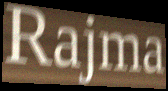
Rajma